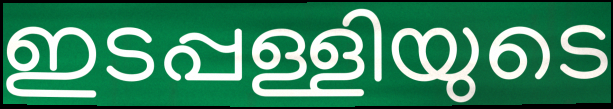
ഇടപ്പള്ളിയുടെ